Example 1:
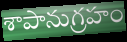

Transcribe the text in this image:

శాపానుగ్రహం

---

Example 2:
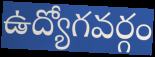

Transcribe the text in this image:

ఉద్యోగవర్గం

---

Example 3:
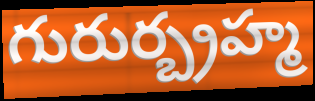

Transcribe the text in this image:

గురుర్బ్రహ్మ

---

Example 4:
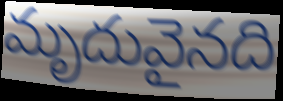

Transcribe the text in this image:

మృదువైనది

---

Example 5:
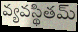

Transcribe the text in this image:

వ్యవస్థితమ్